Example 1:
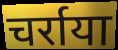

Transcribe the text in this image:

चर्राया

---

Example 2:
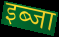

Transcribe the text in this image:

इब्जा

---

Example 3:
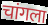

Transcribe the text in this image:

चांगला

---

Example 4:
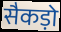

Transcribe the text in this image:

सैकड़ो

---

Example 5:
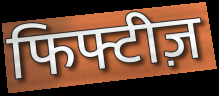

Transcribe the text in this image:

फिफ्टीज़